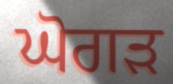
ਘੋਗੜ